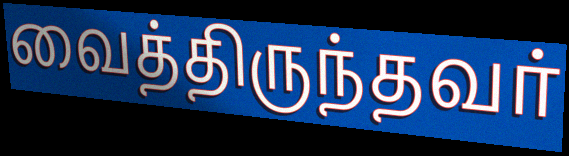
வைத்திருந்தவர்